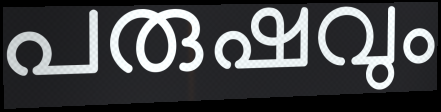
പരുഷവും